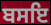
ਬਸਇ